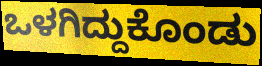
ಒಳಗಿದ್ದುಕೊಂಡು